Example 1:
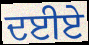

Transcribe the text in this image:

ਦਈਏ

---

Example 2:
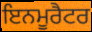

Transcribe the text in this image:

ਇਨਮੂਰੈਟਰ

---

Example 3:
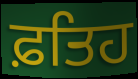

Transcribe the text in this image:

ਫ਼ਤਿਹ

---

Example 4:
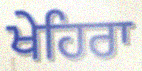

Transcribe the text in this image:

ਖੇਹਿਰਾ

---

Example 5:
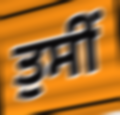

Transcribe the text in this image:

ਤੁਸੀਂ